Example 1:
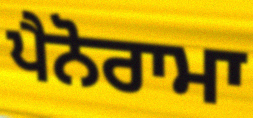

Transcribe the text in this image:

ਪੈਨੋਰਾਮਾ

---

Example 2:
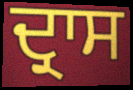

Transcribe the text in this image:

ਦ੍ਰਾਸ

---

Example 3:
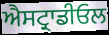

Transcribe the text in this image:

ਐਸਟ੍ਰਾਡੀਓਲ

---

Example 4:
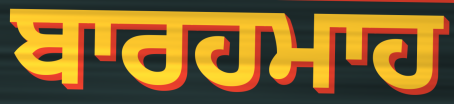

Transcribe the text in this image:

ਬਾਰਹਮਾਹ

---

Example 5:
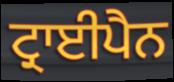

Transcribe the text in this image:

ਟ੍ਰਾਈਪੈਨ